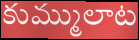
కుమ్ములాట